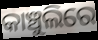
କାଞ୍ଚୁଲିରେ